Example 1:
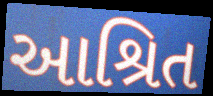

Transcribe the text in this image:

આશ્રિત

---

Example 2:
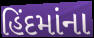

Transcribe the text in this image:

હિંદમાંના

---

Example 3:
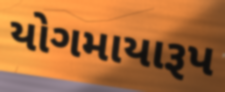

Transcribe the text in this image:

યોગમાયારૂપ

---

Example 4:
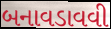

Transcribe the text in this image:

બનાવડાવવી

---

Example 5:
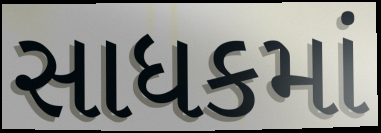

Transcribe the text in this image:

સાધકમાં